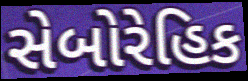
સેબોરેહિક